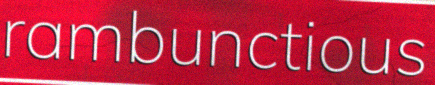
rambunctious